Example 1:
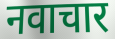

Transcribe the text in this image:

नवाचार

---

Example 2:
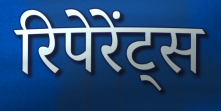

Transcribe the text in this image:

रिपेरेंट्स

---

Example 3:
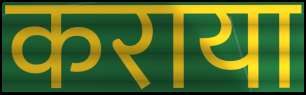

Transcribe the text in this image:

कराया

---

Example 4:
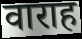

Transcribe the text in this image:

वाराह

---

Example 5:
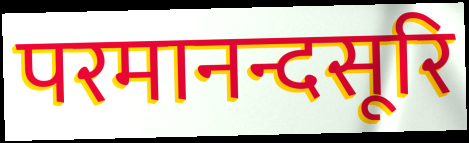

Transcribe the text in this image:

परमानन्दसूरि